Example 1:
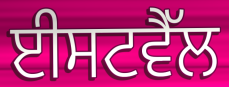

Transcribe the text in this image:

ਈਸਟਵੈੱਲ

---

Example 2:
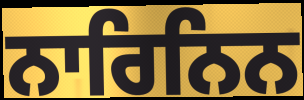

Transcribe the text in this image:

ਨਾਰਿਨਿਨ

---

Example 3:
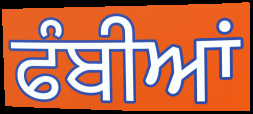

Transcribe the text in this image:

ਫੰਬੀਆਂ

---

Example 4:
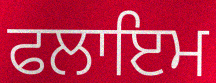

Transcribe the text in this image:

ਫਲਾਇਮ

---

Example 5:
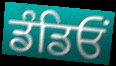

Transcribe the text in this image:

ਡੰਡਿਓਂ